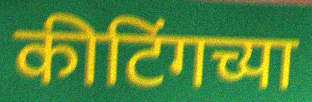
कीटिंगच्या